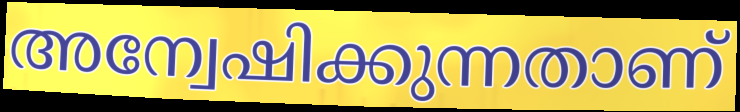
അന്വേഷിക്കുന്നതാണ്